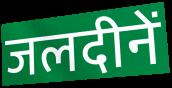
जलदीनें